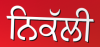
ਨਿਕੱਲੀ